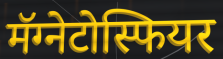
मॅग्नेटोस्फियर